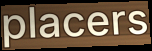
placers